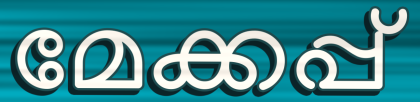
മേക്കപ്പ്